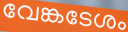
വേങ്കടേശം